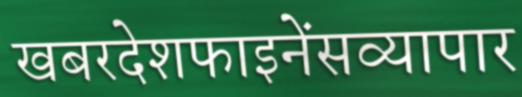
खबरदेशफाइनेंसव्यापार